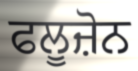
ਫਲੂਜ਼ੋਨ